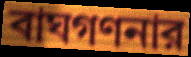
বাঘগণনার